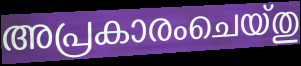
അപ്രകാരംചെയ്തു